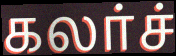
கலர்ச்